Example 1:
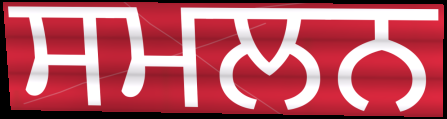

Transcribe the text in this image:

ਸਮਲਨ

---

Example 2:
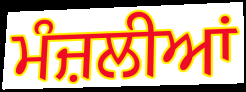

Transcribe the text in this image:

ਮੰਜ਼ਲੀਆਂ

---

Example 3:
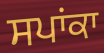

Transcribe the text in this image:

ਸਪਾਂਕਾ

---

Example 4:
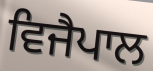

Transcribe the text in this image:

ਵਿਜੈਪਾਲ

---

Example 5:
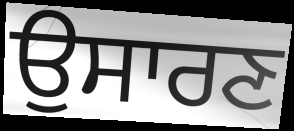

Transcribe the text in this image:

ਉਸਾਰਣ